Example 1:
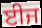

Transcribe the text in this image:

ਈਜ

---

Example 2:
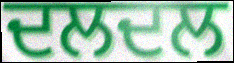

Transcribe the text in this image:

ਦਲਦਲ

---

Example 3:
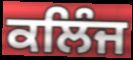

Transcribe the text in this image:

ਕਲਿੰਜ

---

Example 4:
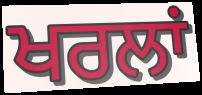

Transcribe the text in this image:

ਖਰਲਾਂ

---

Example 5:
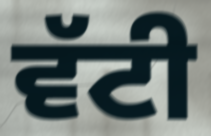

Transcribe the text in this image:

ਵੱਟੀ